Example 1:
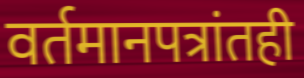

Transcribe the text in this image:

वर्तमानपत्रांतही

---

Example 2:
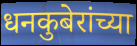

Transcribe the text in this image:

धनकुबेरांच्या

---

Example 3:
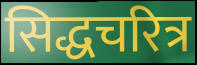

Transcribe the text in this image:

सिद्धचरित्र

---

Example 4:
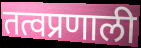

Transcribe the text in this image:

तत्वप्रणाली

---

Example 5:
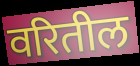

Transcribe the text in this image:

वरितील